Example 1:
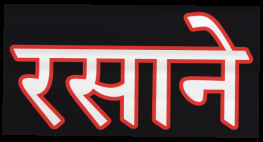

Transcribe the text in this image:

रसाने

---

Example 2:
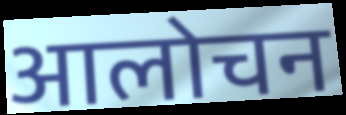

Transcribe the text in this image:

आलोचन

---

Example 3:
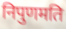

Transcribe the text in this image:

निपुणमति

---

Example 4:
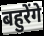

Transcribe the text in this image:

बहुरेंगे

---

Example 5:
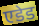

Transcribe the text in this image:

एडेड